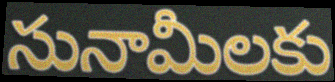
సునామీలకు